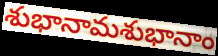
శుభానామశుభానాం